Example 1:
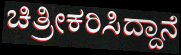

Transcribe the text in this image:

ಚಿತ್ರೀಕರಿಸಿದ್ದಾನೆ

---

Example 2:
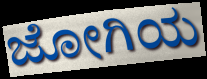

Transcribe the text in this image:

ಜೋಗಿಯ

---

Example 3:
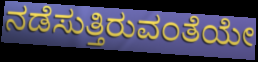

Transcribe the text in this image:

ನಡೆಸುತ್ತಿರುವಂತೆಯೇ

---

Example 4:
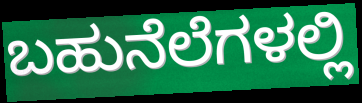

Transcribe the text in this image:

ಬಹುನೆಲೆಗಳಲ್ಲಿ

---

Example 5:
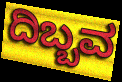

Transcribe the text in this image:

ದಿಬ್ಬವ